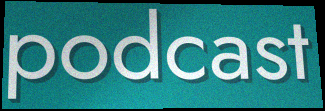
podcast